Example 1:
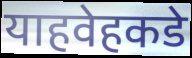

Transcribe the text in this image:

याहवेहकडे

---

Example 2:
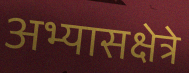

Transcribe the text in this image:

अभ्यासक्षेत्रे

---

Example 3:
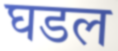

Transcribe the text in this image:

घडल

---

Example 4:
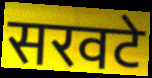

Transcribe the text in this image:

सरवटे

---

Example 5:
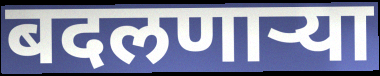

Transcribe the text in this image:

बदलणार्‍या